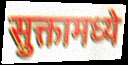
सुक्तामध्ये